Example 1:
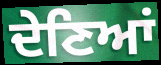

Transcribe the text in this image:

ਦੇਣਿਆਂ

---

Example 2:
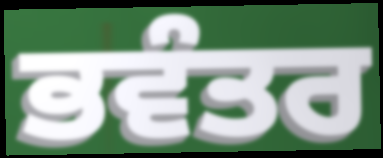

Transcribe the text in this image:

ਭਵੰਤਰ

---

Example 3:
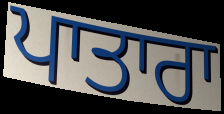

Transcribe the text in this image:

ਪਾਤਾਰਾ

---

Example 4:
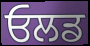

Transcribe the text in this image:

ਓਲਡ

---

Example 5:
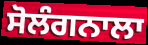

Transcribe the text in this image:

ਸੋਲੰਗਨਾਲਾ